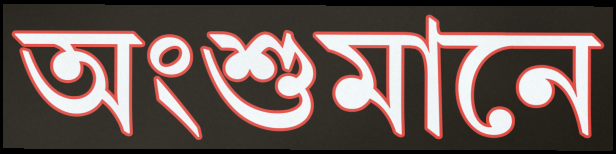
অংশুমানে